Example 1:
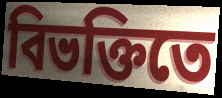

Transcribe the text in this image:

বিভক্তিতে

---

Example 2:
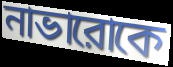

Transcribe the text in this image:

নাভারোকে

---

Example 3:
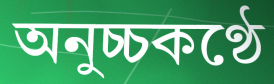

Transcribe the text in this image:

অনুচ্চকণ্ঠে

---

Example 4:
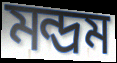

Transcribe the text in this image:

মন্দ্রম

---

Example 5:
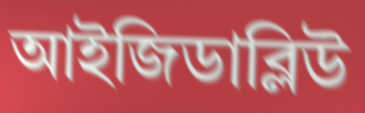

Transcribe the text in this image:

আইজিডাব্লিউ